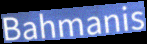
Bahmanis